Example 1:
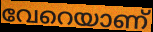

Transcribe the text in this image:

വേറെയാണ്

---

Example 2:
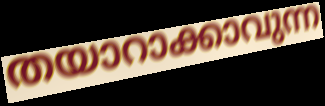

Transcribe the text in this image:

തയാറാക്കാവുന്ന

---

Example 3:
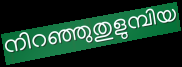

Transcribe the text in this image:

നിറഞ്ഞുതുളുമ്പിയ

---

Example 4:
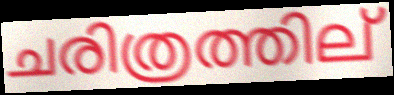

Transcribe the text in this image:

ചരിത്രത്തില്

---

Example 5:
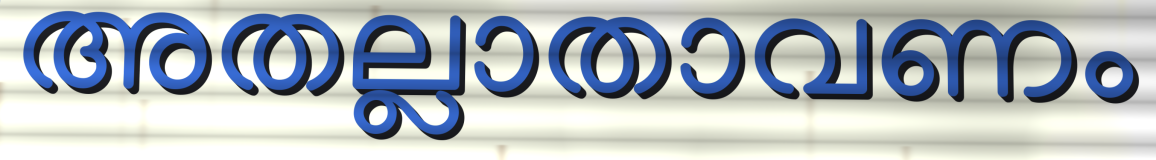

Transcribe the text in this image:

അതല്ലാതാവണം